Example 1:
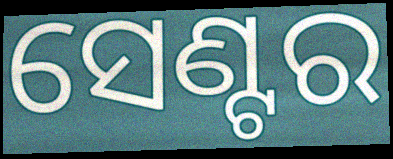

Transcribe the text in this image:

ସେଣ୍ଟର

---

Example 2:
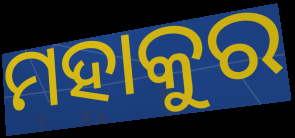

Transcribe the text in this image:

ମହାକୁର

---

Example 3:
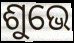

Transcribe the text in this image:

ଶୁଭେ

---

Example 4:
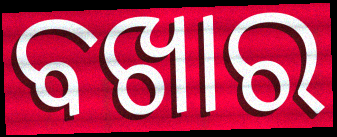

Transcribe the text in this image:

ବଖାର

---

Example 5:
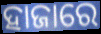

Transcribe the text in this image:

ହାଜାରେ